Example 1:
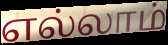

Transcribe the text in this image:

எல்லாம்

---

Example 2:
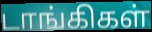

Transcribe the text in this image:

டாங்கிகள்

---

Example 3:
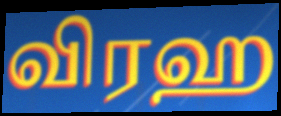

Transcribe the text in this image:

விரஹ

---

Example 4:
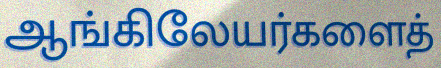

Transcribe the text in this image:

ஆங்கிலேயர்களைத்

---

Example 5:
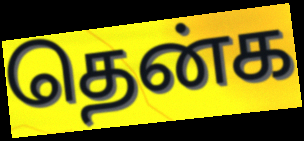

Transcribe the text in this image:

தென்க